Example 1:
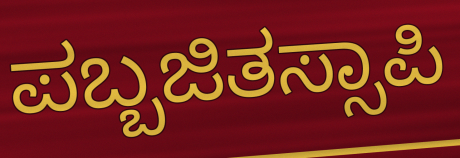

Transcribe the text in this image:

ಪಬ್ಬಜಿತಸ್ಸಾಪಿ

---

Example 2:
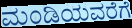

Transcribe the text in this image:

ಮಂಡಿಯವರೆಗೆ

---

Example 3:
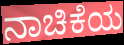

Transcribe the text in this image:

ನಾಚಿಕೆಯ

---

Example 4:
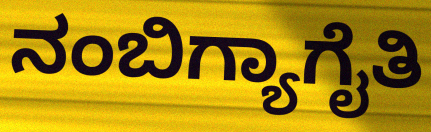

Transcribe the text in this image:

ನಂಬಿಗ್ಯಾಗೈತಿ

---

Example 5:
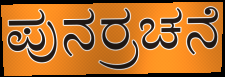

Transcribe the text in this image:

ಪುನರ್ರಚನೆ